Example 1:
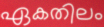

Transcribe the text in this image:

ഏകതിലം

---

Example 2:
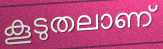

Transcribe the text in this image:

കൂടുതലാണ്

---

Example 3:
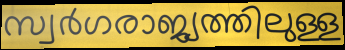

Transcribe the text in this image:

സ്വർഗരാജ്യത്തിലുള്ള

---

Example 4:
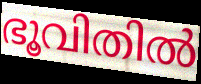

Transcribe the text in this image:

ഭൂവിതിൽ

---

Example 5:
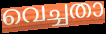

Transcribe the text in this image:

വെച്ചതാ